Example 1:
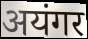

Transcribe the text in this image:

अयंगर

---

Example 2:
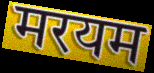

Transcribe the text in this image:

मरयम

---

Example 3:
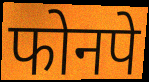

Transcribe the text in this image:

फोनपे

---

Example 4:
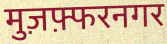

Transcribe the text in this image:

मुज़फ़्फरनगर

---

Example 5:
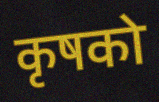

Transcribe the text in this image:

कृषको